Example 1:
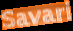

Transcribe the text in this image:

Savari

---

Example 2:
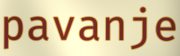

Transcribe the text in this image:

pavanje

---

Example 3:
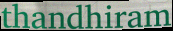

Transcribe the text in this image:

thandhiram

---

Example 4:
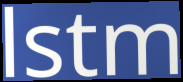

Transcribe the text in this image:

lstm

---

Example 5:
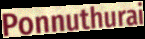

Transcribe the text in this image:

Ponnuthurai